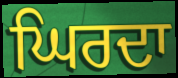
ਘਿਰਦਾ